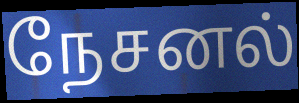
நேசனல்